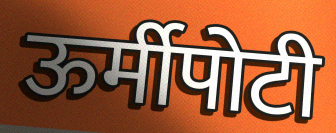
ऊर्मीपोटी